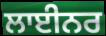
ਲਾਈਨਰ